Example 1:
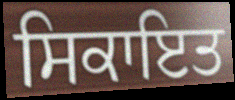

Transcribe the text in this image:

ਸਿਕਾਇਤ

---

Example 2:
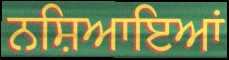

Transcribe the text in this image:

ਨਸ਼ਿਆਇਆਂ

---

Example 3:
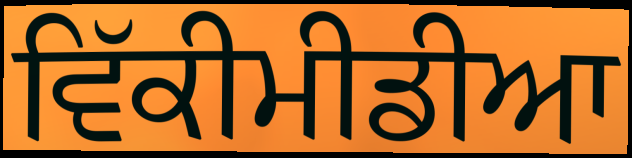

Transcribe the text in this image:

ਵਿੱਕੀਮੀਡੀਆ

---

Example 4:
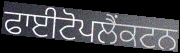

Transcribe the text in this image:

ਫਾਈਟੋਪਲੈਂਕਟਨ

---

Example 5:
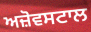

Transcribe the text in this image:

ਅਜ਼ੋਵਸਟਾਲ